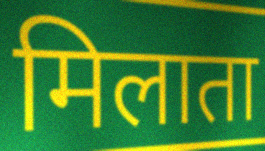
मिलाता